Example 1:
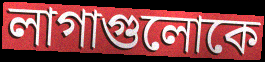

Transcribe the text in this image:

লাগাগুলোকে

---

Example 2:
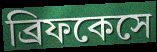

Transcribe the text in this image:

ব্রিফকেসে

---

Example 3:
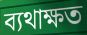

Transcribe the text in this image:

ব্যথাক্ষত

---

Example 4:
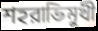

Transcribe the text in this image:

শহরাভিমুখী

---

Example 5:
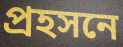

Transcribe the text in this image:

প্রহসনে